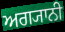
ਅਗ੍ਯਾਨੀ